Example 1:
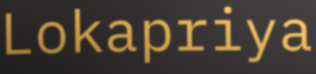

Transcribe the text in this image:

Lokapriya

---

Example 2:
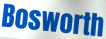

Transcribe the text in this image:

Bosworth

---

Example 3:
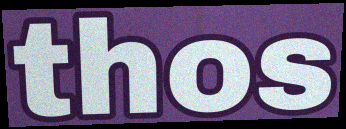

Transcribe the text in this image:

thos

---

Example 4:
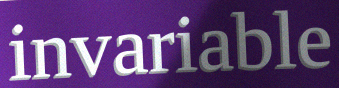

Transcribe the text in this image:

invariable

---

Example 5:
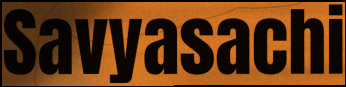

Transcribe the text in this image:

Savyasachi